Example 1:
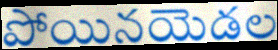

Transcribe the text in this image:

పోయినయెడల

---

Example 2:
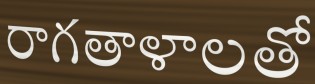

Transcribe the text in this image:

రాగతాళాలతో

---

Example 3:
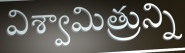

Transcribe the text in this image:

విశ్వామిత్రున్ని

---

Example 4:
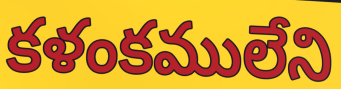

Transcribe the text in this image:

కళంకములేని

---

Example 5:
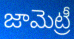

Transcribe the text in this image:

జామెట్రీ